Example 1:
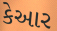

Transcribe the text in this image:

કેઆર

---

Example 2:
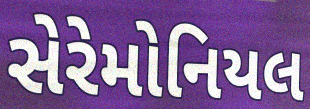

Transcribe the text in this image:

સેરેમોનિયલ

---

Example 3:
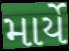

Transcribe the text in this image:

માર્યે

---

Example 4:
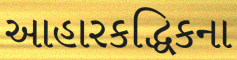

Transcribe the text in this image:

આહારકદ્ધિકના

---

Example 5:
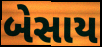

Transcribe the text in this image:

બેસાય